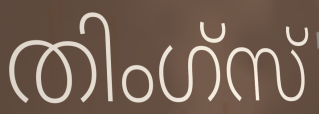
തിംഗ്സ്